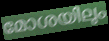
മോശയിലും